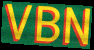
VBN